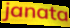
janata